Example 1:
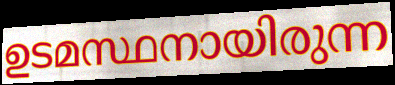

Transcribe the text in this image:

ഉടമസ്ഥനായിരുന്ന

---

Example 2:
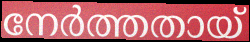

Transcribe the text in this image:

നേർത്തതായ്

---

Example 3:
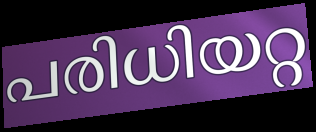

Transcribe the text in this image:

പരിധിയറ്റ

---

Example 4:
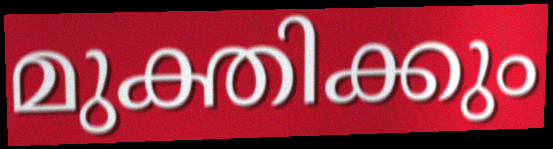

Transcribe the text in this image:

മുക്തിക്കും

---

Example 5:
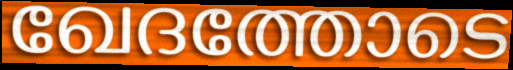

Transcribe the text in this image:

ഖേദത്തോടെ